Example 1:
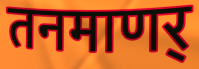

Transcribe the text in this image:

तनमाणर्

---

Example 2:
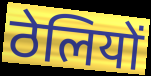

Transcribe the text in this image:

ठेलियों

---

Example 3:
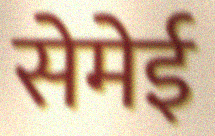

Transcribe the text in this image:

सेमेई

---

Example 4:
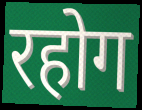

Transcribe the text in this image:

रहोग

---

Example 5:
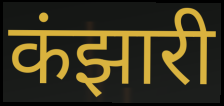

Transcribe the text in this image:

कंझारी